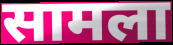
सामला